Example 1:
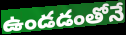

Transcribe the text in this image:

ఉండడంతోనే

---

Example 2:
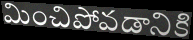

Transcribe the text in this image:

మించిపోవడానికి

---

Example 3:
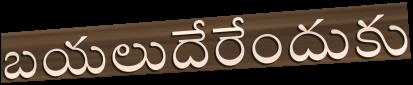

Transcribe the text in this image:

బయలుదేరేందుకు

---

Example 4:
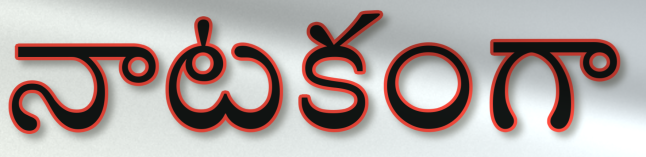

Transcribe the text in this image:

నాటకంగా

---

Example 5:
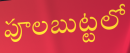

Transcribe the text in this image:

పూలబుట్టలో